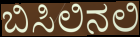
ಬಿಸಿಲಿನಲಿ